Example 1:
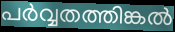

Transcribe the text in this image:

പർവ്വതത്തിങ്കൽ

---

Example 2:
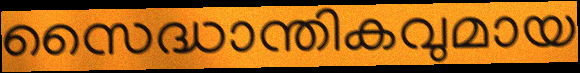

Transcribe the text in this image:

സൈദ്ധാന്തികവുമായ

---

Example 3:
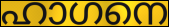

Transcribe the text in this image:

ഹാഗനെ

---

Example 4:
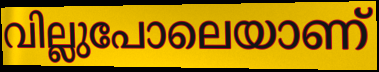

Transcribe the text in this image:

വില്ലുപോലെയാണ്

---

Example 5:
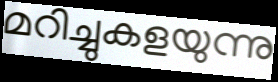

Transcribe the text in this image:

മറിച്ചുകളയുന്നു